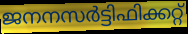
ജനനസർട്ടിഫിക്കറ്റ്